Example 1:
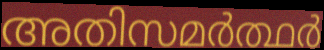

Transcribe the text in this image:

അതിസമർത്ഥർ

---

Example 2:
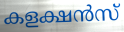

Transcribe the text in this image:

കളക്ഷൻസ്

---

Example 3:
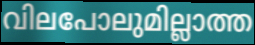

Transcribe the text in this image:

വിലപോലുമില്ലാത്ത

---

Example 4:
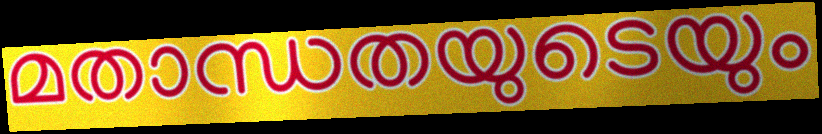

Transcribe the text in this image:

മതാന്ധതയുടെയും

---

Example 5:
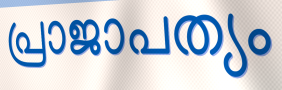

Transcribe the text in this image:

പ്രാജാപത്യം